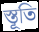
স্তূতি